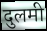
दुलमी